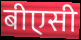
बीएसी